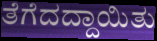
ತೆಗೆದದ್ದಾಯಿತು